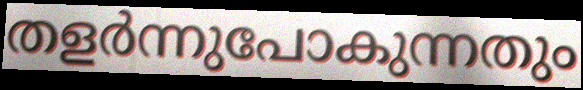
തളർന്നുപോകുന്നതും